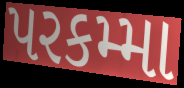
પરકમ્મા